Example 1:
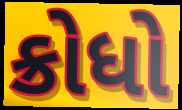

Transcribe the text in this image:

ક્રોધો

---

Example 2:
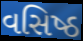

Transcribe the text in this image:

વસિષ્‍ઠ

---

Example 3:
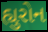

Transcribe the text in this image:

હ્યુરોન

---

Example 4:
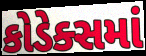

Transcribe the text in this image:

કોડેક્સમાં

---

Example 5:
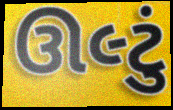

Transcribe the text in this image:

ઊલ્ટું